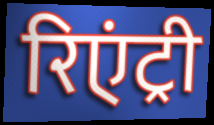
रिएंट्री